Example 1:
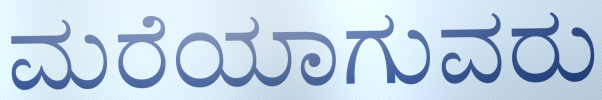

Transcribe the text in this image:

ಮರೆಯಾಗುವರು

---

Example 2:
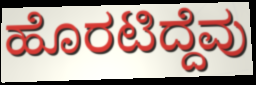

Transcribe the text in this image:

ಹೊರಟಿದ್ದೆವು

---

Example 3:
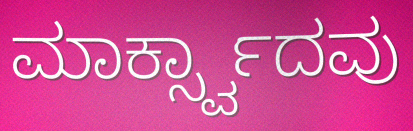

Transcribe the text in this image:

ಮಾರ್ಕ್ಸ್ವಾದವು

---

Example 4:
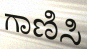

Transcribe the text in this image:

ಗಾಣಿಸಿ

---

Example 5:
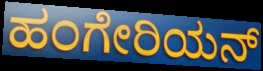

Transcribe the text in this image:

ಹಂಗೇರಿಯನ್